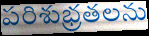
పరిశుభ్రతలను